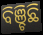
ବିଞ୍ଚିଛି